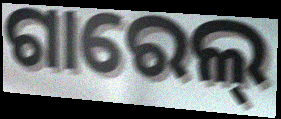
ଗାରେଲ୍